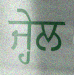
ਜ੍ਹੇਲ